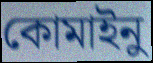
কোমাইনু